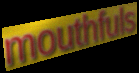
mouthfuls